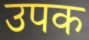
उपक